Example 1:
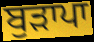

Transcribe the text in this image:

ਬੁੜਾਪਾ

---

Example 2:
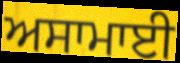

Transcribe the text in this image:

ਅਸਾਮਾਈ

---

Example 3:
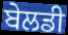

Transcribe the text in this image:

ਬੇਲਡੀ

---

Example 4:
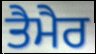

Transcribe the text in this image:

ਤੈਮੈਰ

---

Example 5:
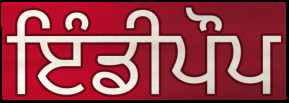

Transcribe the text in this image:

ਇੰਡੀਪੌਪ